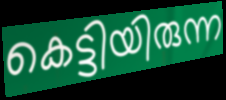
കെട്ടിയിരുന്ന